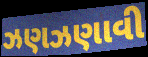
ઝણઝણાવી